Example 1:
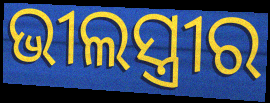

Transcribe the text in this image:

ଭୀଲସ୍ତ୍ରୀର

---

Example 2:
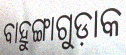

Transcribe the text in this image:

ବାହୁଙ୍ଗାଗୁଡ଼ାକ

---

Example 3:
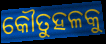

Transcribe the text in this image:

କୌତୁହଳକୁ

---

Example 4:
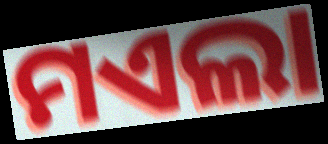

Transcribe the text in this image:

ମଏଲା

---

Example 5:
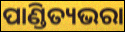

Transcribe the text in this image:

ପାଣ୍ଡିତ୍ୟଭରା